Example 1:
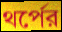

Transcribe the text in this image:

থর্পের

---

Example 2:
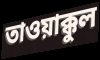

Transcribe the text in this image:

তাওয়াক্কুল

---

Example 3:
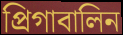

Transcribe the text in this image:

প্রিগাবালিন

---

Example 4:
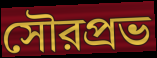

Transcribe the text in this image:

সৌরপ্রভ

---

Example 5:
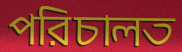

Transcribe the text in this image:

পরিচালত